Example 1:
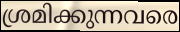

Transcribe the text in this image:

ശ്രമിക്കുന്നവരെ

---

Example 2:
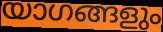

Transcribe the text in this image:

യാഗങ്ങളും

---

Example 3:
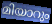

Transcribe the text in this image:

മിയാറും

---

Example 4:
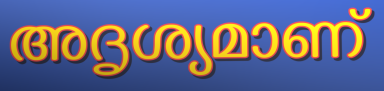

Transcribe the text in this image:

അദൃശ്യമാണ്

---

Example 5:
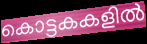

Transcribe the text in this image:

കൊട്ടകകളിൽ